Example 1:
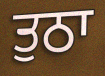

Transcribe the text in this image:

ਤੁਠਾ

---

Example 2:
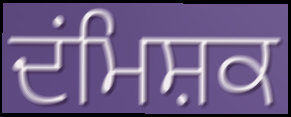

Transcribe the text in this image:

ਦਂਮਿਸ਼ਕ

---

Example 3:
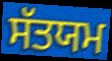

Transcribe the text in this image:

ਸੱਤਯਮ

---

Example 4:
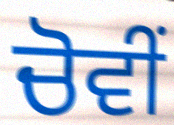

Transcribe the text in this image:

ਚੋਵੀਂ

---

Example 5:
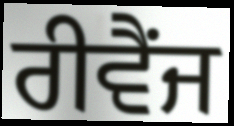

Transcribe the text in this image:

ਰੀਵੈਂਜ